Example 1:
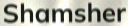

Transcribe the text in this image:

Shamsher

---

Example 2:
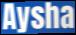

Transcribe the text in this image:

Aysha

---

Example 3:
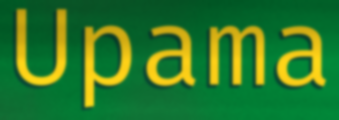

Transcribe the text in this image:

Upama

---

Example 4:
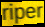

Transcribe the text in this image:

riper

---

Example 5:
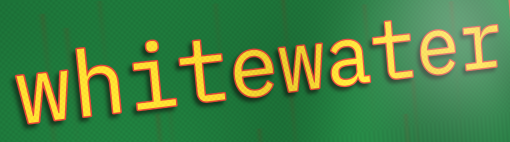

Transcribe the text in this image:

whitewater